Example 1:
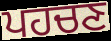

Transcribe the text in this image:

ਪਹਚਣ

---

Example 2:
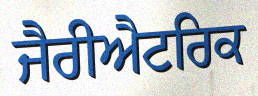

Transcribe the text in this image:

ਜੈਰੀਐਟਰਿਕ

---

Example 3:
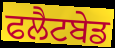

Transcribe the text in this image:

ਫਲੈਟਬੇਡ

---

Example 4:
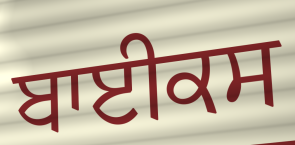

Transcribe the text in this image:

ਬਾਈਕਸ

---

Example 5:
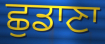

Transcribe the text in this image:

ਛੁਡਾਣਾ